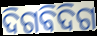
ଦିଗବିଦିଗ